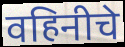
वहिनीचे